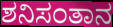
ಶನಿಸಂತಾನ